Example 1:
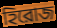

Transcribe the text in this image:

হিরোজ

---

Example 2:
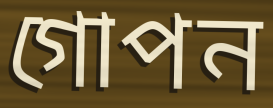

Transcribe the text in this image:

গোপন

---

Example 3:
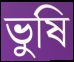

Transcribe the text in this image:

ভুষি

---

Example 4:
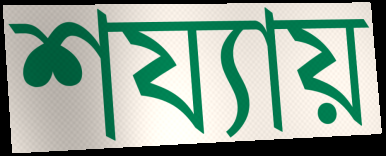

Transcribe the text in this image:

শয্যায়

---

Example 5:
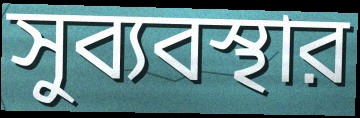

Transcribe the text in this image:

সুব্যবস্থার